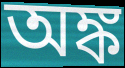
অঙ্ক